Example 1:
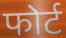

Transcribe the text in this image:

फोर्ट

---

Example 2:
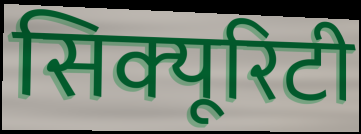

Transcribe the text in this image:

सिक्यूरिटी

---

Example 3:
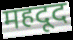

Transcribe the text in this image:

महदूद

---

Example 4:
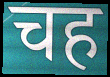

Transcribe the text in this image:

चह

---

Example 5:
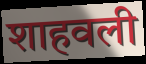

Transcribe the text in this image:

शाहवली